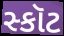
સ્કૉટ